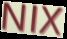
NIX